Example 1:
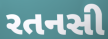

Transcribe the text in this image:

રતનસી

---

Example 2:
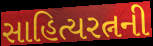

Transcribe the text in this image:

સાહિત્યરત્નની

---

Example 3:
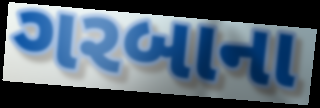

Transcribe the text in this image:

ગરબાના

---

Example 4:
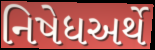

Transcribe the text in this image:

નિષેધઅર્થે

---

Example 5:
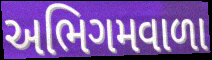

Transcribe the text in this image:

અભિગમવાળા